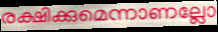
രക്ഷിക്കുമെന്നാണല്ലോ